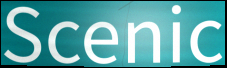
Scenic